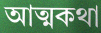
আত্মকথা